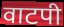
वाटपी